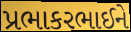
પ્રભાકરભાઈને